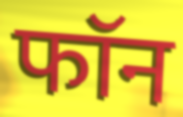
फॉन